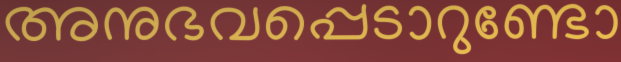
അനുഭവപ്പെടാറുണ്ടോ